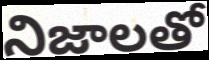
నిజాలతో